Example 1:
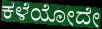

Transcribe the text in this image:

ಕಳೆಯೋದೇ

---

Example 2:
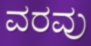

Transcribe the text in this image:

ವರವು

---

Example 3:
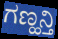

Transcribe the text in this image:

ಗಣ್ಹನ್ತಿ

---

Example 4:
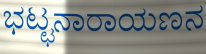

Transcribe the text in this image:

ಭಟ್ಟನಾರಾಯಣನ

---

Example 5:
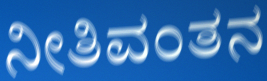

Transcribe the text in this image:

ನೀತಿವಂತನ